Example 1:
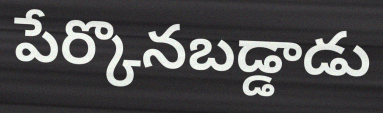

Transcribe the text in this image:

పేర్కొనబడ్డాడు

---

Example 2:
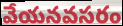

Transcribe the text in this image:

వేయనవసరం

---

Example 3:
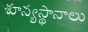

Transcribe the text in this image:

శూన్యస్థానాలు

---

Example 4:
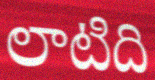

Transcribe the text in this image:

లాటిది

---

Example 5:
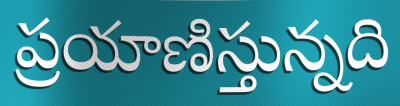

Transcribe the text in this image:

ప్రయాణిస్తున్నది